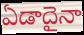
ఏడాదైనా